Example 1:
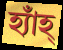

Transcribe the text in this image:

হ্যাঁহ্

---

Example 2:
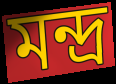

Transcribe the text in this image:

মন্দ্র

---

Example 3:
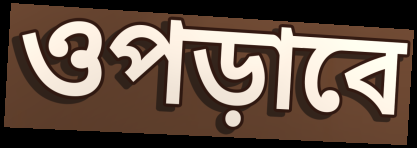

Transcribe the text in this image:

ওপড়াবে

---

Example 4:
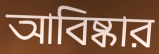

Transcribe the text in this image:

আবিষ্কার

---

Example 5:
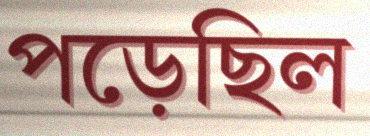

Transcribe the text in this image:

পড়েছিল